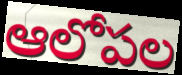
ఆలోపల